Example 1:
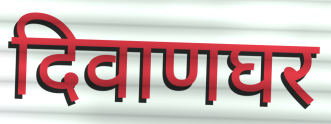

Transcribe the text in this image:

दिवाणघर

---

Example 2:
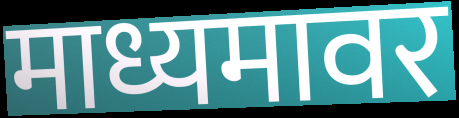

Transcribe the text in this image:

माध्यमावर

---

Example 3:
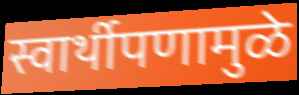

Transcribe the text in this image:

स्वार्थीपणामुळे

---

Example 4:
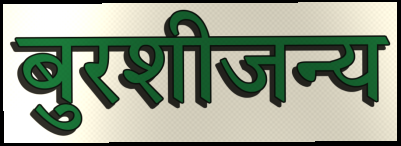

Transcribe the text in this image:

बुरशीजन्य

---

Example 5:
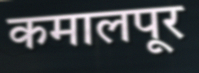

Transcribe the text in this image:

कमालपूर